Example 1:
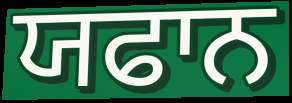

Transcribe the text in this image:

ਯਫਾਨ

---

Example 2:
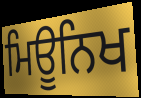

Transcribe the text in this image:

ਮਿਊਨਿਖ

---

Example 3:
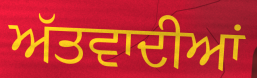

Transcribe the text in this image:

ਅੱਤਵਾਦੀਆਂ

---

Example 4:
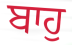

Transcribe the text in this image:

ਬਾਹੁ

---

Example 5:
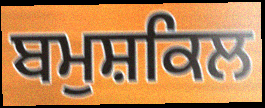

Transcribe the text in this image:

ਬਮੁਸ਼ਕਿਲ